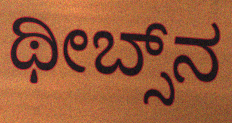
ಥೀಬ್ಸ್‌ನ